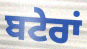
ਬਟੇਰਾਂ